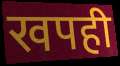
खपही